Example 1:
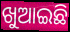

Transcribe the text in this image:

ଖୁଆଇଛି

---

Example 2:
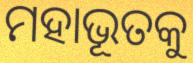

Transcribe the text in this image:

ମହାଭୂତକୁ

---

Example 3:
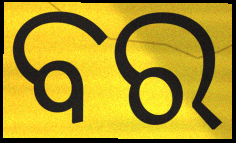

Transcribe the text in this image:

ବର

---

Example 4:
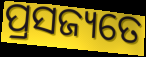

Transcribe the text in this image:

ପ୍ରସଜ୍ୟତେ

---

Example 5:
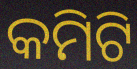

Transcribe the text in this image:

କମିଟି